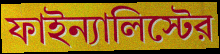
ফাইন্যালিস্টের